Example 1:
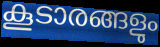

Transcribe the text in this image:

കൂടാരങ്ങളും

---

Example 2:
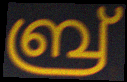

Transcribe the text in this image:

ബ്ര്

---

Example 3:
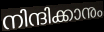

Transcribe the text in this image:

നിന്ദിക്കാനും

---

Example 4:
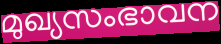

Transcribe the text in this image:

മുഖ്യസംഭാവന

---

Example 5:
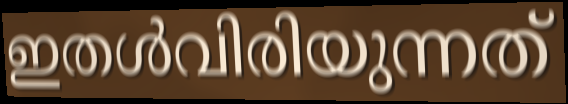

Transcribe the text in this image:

ഇതൾവിരിയുന്നത്